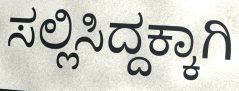
ಸಲ್ಲಿಸಿದ್ದಕ್ಕಾಗಿ